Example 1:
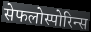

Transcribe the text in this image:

सेफलोस्पोरिन्स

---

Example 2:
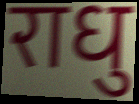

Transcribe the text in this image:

राधु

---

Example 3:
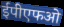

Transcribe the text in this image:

ईपीएफओ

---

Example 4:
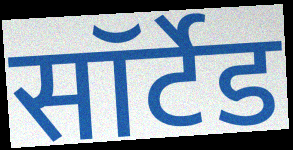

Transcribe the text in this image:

सॉर्टेड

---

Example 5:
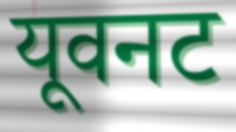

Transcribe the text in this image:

यूवनट